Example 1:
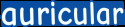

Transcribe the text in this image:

auricular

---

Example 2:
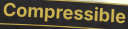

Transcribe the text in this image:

Compressible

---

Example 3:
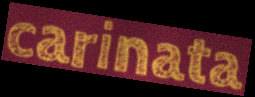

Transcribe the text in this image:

carinata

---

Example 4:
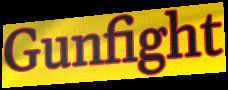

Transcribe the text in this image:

Gunfight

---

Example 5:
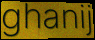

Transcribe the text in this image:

ghanij